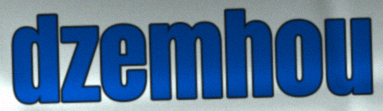
dzemhou